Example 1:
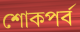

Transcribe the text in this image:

শোকপর্ব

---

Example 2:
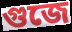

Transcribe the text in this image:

গুজে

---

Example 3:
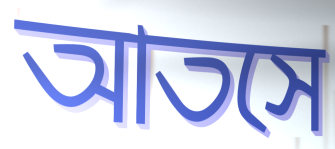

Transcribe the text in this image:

আতসে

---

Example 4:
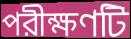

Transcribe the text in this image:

পরীক্ষণটি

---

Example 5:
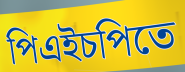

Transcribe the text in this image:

পিএইচপিতে